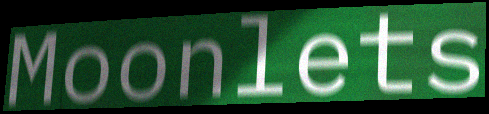
Moonlets